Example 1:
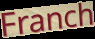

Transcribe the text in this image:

Franch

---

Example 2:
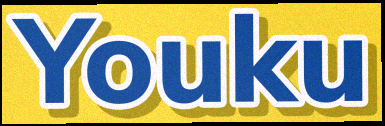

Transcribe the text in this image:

Youku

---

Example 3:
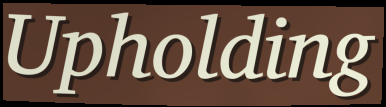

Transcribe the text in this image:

Upholding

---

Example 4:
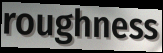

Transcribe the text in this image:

roughness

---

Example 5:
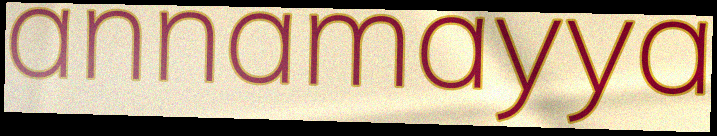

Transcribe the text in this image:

annamayya